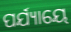
ପର୍ଯ୍ୟାୟେ